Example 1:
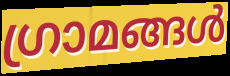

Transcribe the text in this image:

ഗ്രാമങ്ങൾ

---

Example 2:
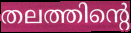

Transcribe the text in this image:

തലത്തിന്റെ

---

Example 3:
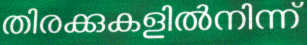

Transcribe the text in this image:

തിരക്കുകളിൽനിന്ന്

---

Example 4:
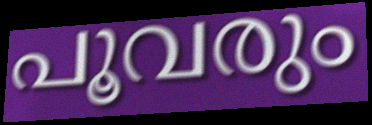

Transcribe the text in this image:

പൂവരും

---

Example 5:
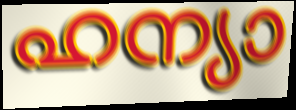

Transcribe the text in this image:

ഹന്യാ